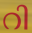
റി